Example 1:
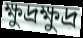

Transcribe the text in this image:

ক্ষুদ্রক্ষুদ্র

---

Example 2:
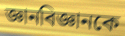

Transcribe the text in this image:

জ্ঞানবিজ্ঞানকে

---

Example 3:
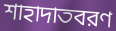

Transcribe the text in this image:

শাহাদাতবরণ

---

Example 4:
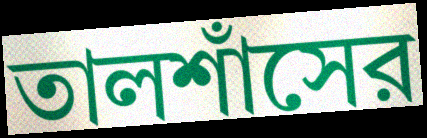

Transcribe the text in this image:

তালশাঁসের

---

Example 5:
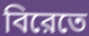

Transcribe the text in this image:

বিরেতে